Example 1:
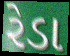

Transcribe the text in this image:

રેડા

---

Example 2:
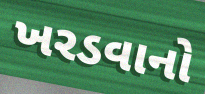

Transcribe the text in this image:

ખરડવાનો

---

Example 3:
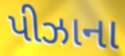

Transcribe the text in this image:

પીઝાના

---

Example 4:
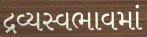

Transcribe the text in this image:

દ્રવ્યસ્વભાવમાં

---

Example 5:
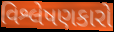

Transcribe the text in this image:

વિશ્લેષણકારો